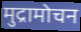
मुद्रामोचन